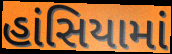
હાંસિયામાં